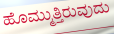
ಹೊಮ್ಮುತ್ತಿರುವುದು